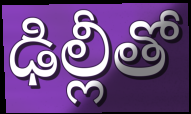
ఢిల్లీతో